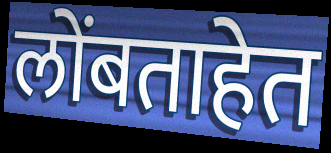
लोंबताहेत